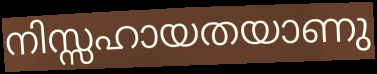
നിസ്സഹായതയാണു